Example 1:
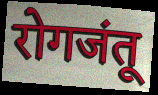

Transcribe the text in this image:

रोगजंतू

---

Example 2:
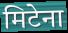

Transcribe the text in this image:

मिटेना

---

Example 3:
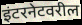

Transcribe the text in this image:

इंटरनेटवरील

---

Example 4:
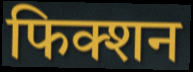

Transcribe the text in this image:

फिक्‍शन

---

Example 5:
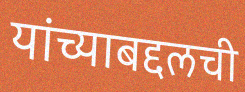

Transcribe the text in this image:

यांच्याबद्दलची